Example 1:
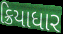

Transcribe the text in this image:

ક્રિયાધાર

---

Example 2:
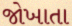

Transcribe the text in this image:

જોખાતા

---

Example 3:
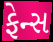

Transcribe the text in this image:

ફેન્સ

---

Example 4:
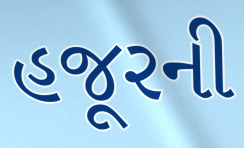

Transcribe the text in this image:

હજૂરની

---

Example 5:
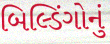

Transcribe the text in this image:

બિલ્ડિંગોનું